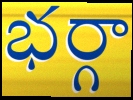
భర్గా